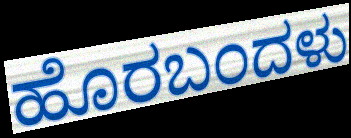
ಹೊರಬಂದಳು